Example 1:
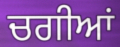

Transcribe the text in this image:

ਚਗੀਆਂ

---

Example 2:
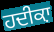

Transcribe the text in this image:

ਹਦੀਕ਼ਾ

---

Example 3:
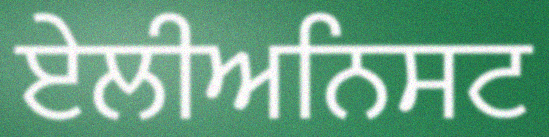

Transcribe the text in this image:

ਏਲੀਅਨਿਸਟ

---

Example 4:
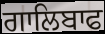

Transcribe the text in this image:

ਗਾਲਿਬਾਫ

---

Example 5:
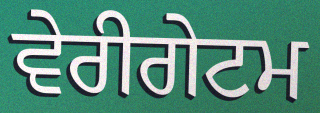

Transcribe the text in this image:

ਵੇਰੀਗੇਟਮ